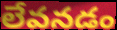
లేవనడం